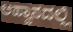
ಆಹ್ವಾನದಲ್ಲಿ